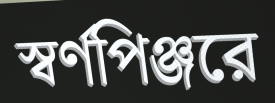
স্বর্ণপিঞ্জরে